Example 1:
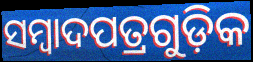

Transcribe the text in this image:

ସମ୍ୱାଦପତ୍ରଗୁଡ଼ିକ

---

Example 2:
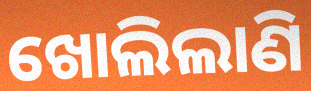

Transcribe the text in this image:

ଖୋଲିଲାଣି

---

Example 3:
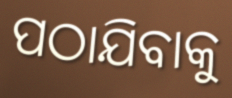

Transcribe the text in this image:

ପଠାଯିବାକୁ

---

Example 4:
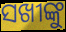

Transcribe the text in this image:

ସଖୀଙ୍କୁ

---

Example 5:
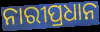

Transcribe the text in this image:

ନାରୀପ୍ରଧାନ